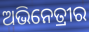
ଅଭିନେତ୍ରୀର